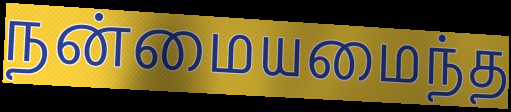
நன்மையமைந்த